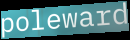
poleward